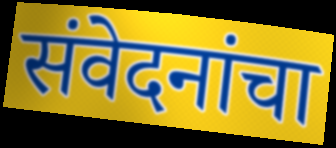
संवेदनांचा